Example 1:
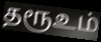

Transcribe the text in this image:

தரூஉம்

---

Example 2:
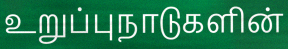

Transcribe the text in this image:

உறுப்புநாடுகளின்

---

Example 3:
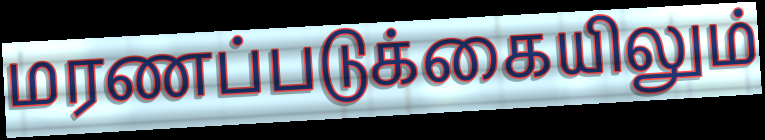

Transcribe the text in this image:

மரணப்படுக்கையிலும்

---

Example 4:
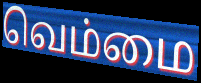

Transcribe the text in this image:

வெம்மை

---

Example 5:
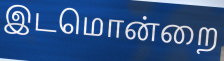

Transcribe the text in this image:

இடமொன்றை